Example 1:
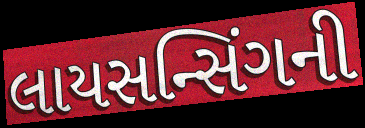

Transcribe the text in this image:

લાયસન્સિંગની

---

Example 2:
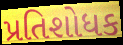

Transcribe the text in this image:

પ્રતિશોધક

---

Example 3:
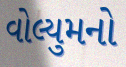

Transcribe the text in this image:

વોલ્યુમનો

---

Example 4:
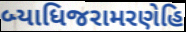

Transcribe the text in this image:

બ્યાધિજરામરણેહિ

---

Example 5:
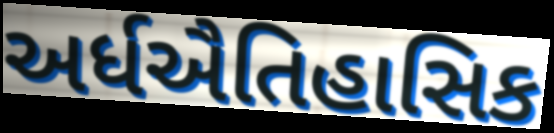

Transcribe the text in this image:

અર્ધઐતિહાસિક